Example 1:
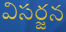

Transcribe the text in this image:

విసర్జన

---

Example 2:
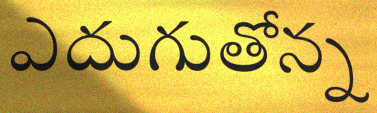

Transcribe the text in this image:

ఎదుగుతోన్న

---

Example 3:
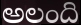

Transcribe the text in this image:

అలంది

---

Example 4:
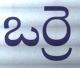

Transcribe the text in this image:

ఒర్రె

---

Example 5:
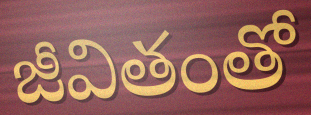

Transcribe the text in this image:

జీవితంతో